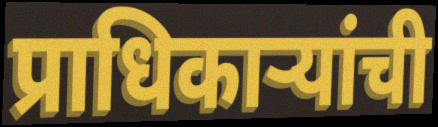
प्राधिकाऱ्यांची